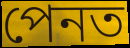
পেনত